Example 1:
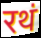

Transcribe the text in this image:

रथं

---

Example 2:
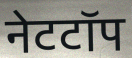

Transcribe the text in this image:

नेटटॉप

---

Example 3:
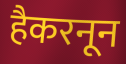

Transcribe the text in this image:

हैकरनून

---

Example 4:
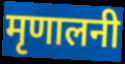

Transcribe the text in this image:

मृणालनी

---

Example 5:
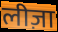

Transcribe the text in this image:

लीज़ा